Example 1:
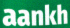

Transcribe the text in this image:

aankh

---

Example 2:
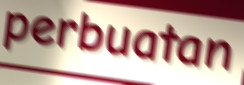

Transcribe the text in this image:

perbuatan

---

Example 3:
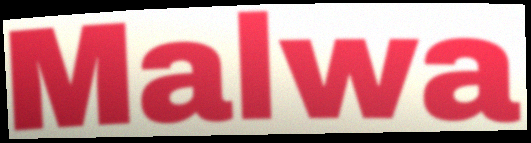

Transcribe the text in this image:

Malwa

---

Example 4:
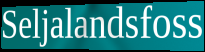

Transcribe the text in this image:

Seljalandsfoss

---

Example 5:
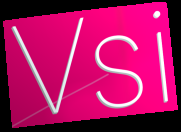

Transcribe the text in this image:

Vsi